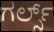
ಗರ್ಲ್ಸ್